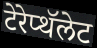
टेरेप्थॅलेट